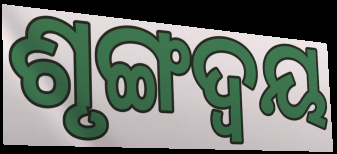
ଶୃଙ୍ଗଦ୍ୱୟ